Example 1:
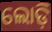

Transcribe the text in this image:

ଲୋଡ଼ି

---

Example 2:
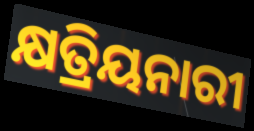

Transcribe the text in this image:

କ୍ଷତ୍ରିୟନାରୀ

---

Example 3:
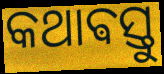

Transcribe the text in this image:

କଥାଵସ୍ତୁ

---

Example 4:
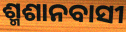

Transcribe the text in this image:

ଶ୍ମଶାନବାସୀ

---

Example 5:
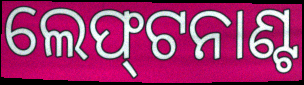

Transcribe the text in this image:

ଲେଫ୍‌ଟନାଣ୍ଟ